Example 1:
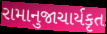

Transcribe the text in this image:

રામાનુજાચાર્યકૃત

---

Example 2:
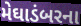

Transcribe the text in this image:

મેઘાડંબરના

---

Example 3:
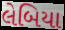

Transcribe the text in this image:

લેબિયા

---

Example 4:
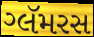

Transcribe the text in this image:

ગ્લૅમરસ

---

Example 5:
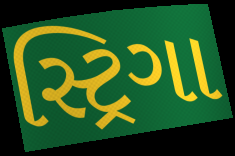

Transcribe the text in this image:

સ્ટ્રિગા